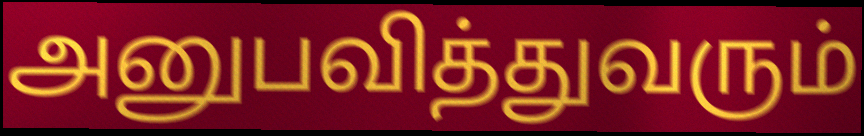
அனுபவித்துவரும்